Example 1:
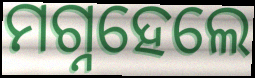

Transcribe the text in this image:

ମଗ୍ନହେଲେ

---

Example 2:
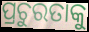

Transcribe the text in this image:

ପ୍ରଚୁରତାକୁ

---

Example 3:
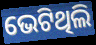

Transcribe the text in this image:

ଭେଟିଥିଲି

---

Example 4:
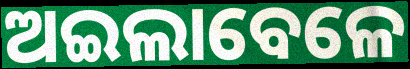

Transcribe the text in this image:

ଅଇଲାବେଳେ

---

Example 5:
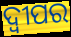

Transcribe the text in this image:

ଦ୍ଵୀପର